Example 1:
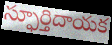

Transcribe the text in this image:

స్ఫూర్తిదాయక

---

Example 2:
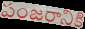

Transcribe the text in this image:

పంజరానికి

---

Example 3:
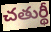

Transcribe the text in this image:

చతుర్థీ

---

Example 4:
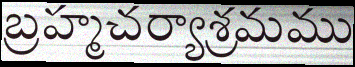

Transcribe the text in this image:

బ్రహ్మచర్యాశ్రమము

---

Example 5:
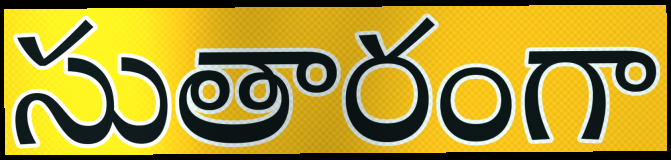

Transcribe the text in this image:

సుతారంగా